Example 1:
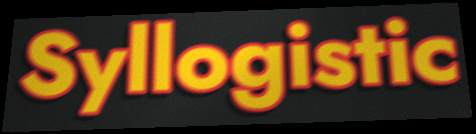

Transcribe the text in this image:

Syllogistic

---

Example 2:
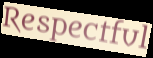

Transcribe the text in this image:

Respectful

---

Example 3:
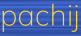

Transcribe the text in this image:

pachij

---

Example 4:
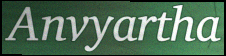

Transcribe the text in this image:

Anvyartha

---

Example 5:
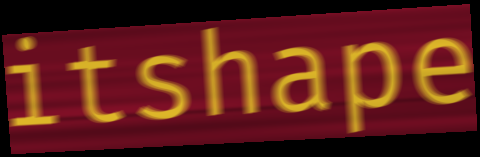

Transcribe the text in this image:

itshape